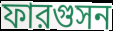
ফারগুসন